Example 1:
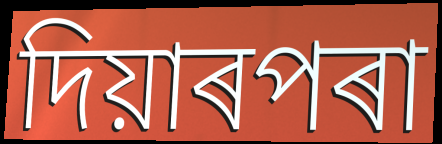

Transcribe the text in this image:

দিয়াৰপৰা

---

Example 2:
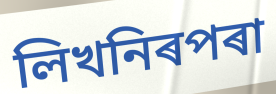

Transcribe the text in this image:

লিখনিৰপৰা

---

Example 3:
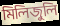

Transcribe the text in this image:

মিলিজুলি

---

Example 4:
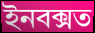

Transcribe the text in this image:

ইনবক্সত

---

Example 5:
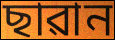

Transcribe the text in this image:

ছাৱান